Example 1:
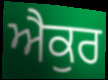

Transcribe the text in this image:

ਐਕੁਰ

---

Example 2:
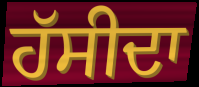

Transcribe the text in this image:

ਹੱਸੀਦਾ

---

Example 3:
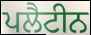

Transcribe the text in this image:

ਪਲੈਟੀਨ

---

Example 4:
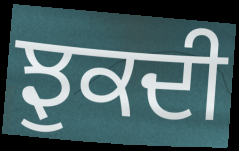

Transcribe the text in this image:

ਝੁਕਦੀ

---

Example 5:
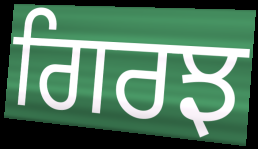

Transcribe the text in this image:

ਗਿਰਝ